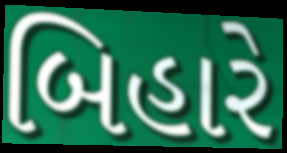
બિહારે